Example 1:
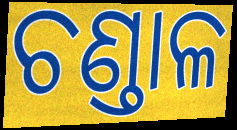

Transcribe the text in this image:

ଚଣ୍ଡାଳ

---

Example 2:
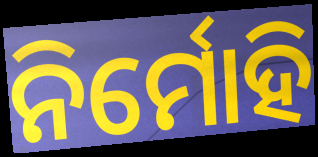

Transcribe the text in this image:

ନିର୍ମୋହି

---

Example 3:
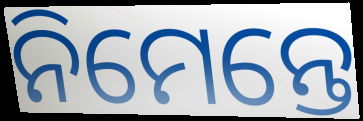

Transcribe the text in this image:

ନିମେନ୍ତେ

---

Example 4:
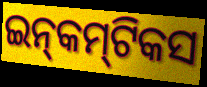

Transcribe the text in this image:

ଇନ୍‍କମ୍‍ଟିକସ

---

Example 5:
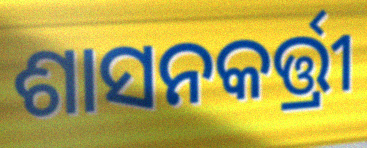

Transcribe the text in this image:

ଶାସନକର୍ତ୍ତ୍ରୀ